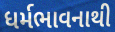
ધર્મભાવનાથી